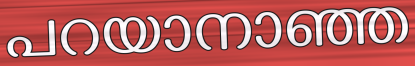
പറയാനാഞ്ഞ